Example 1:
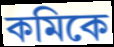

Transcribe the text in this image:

কমিকে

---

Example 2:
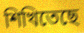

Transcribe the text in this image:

শিখিতেছে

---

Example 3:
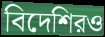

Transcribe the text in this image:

বিদেশিরও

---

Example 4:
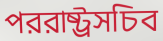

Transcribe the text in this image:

পররাষ্ট্রসচিব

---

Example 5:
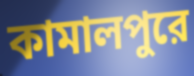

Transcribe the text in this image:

কামালপুরে